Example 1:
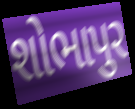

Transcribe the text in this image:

શોભાપુર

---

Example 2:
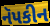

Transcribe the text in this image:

નૅપકીન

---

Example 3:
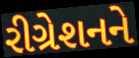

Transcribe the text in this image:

રીગ્રેશનને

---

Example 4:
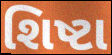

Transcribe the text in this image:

શિષ્ટા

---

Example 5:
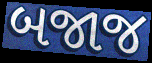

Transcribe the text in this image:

બજાજ